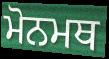
ਮੋਨਮਥ